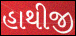
હાથીજી